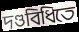
দণ্ডবিধিতে